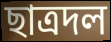
ছাত্রদল